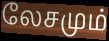
லேசமும்